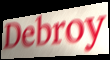
Debroy